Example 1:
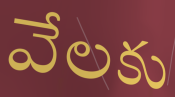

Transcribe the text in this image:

వేలకు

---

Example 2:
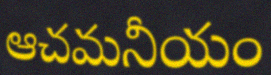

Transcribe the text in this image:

ఆచమనీయం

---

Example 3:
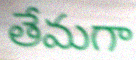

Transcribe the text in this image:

తేమగా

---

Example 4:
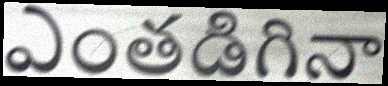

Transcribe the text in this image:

ఎంతడిగినా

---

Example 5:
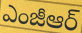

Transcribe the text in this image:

ఎంజీఆర్